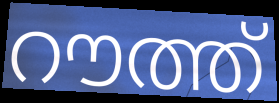
റൗത്ത്